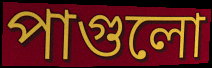
পাগুলো